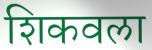
शिकवला